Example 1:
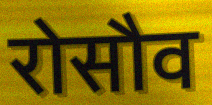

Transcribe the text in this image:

रोसौव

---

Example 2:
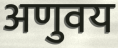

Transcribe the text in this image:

अणुवय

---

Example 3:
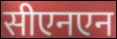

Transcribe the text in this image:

सीएनएन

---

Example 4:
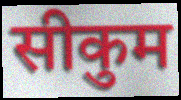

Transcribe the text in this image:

सीकुम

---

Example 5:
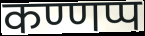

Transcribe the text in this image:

कण्णप्प